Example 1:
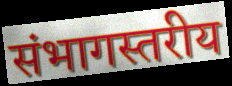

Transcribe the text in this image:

संभागस्तरीय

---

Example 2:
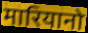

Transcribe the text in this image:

मारियानो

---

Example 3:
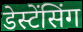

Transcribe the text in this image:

डेस्टेंसिंग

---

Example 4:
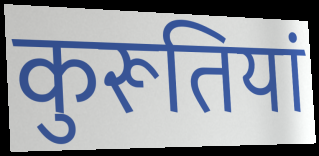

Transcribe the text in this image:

कुरूतियां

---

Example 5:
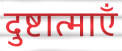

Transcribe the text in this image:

दुष्टात्माएँ